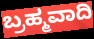
ಬ್ರಹ್ಮವಾದಿ